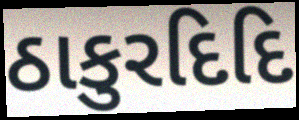
ઠાકુરદિદિ